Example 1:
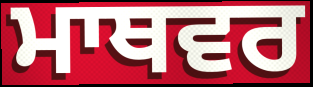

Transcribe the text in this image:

ਮਾਥਵਰ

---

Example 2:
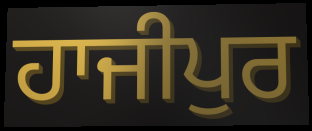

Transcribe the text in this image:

ਹਾਜੀਪੁਰ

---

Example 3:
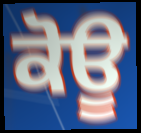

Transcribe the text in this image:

ਕੋਊ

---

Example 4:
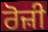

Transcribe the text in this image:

ਰੋਜ਼ੀ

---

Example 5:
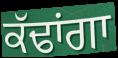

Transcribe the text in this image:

ਕੱਢਾਂਗਾ